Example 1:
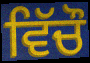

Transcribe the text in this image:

ਵਿੱਚੌ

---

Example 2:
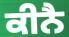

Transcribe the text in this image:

ਕੀਨੈ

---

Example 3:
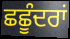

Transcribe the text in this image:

ਛਛੂੰਦਰਾਂ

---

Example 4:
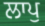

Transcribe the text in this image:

ਲਾਪੁ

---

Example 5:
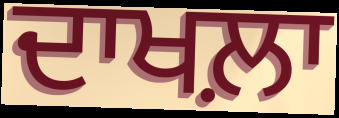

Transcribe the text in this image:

ਦਾਖਲ਼ਾ